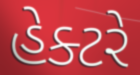
હેક્ટરે